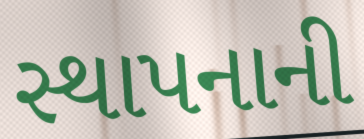
સ્થાપનાની